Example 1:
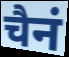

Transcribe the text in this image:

चैनं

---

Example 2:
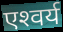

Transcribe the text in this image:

एश्‍वर्य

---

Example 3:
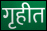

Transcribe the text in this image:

गृहीत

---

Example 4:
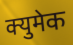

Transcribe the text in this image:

क्युमेक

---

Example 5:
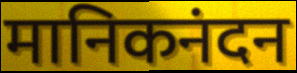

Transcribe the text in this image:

मानिकनंदन